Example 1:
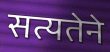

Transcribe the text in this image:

सत्यतेने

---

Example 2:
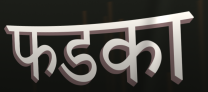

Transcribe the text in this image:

फडका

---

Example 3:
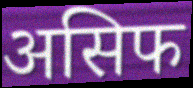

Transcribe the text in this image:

असिफ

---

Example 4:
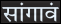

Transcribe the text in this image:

सांगावं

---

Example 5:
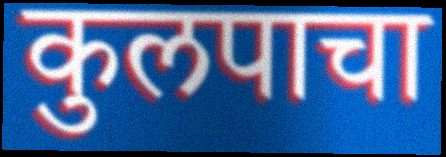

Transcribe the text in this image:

कुलपाचा